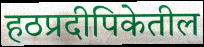
हठप्रदीपिकेतील